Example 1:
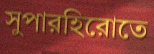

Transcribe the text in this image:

সুপারহিরোতে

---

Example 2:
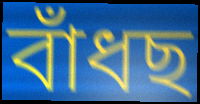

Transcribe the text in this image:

বাঁধছ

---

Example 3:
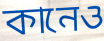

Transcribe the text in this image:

কানেও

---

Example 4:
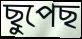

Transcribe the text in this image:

ছুপেছ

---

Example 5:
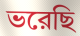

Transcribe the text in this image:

ভরেছি